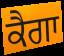
ਕੈਗਾ